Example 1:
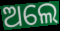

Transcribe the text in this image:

ଅଲେ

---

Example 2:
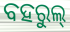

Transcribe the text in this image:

ବହରୁଲ୍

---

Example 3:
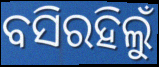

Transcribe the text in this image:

ବସିରହିଲୁଁ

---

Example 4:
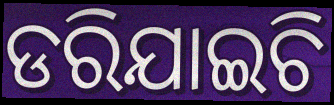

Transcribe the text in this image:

ଡରିଯାଇଚି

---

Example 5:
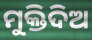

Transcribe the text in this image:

ମୁକ୍ତିଦିଅ